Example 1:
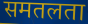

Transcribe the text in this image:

समतलता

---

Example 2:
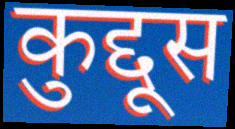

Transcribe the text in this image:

कुद्दूस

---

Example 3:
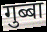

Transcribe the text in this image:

गुब्बा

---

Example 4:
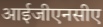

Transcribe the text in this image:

आईजीएनसीए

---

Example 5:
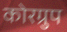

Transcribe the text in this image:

कोरग्रुप